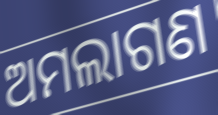
ଅମଲାଗଣ